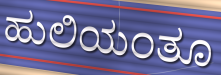
ಹುಲಿಯಂತೂ